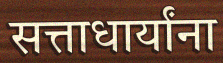
सत्ताधार्यांना